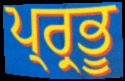
ਪ੍ਰ੍ਰਭੂ